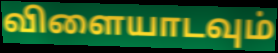
விளையாடவும்